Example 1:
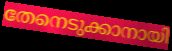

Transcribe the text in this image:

തേനെടുക്കാനായി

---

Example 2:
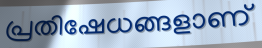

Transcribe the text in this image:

പ്രതിഷേധങ്ങളാണ്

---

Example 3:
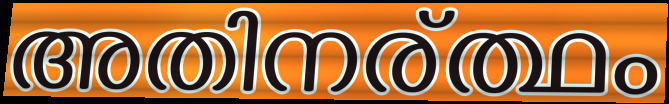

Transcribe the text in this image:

അതിനര്ത്ഥം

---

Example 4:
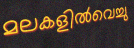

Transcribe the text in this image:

മലകളിൽവെച്ചു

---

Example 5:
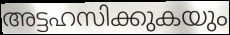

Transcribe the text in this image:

അട്ടഹസിക്കുകയും